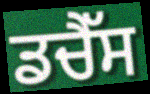
ਡਚੈੱਸ